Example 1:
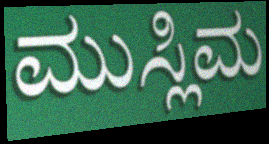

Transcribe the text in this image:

ಮುಸ್ಲಿಮ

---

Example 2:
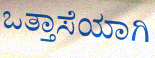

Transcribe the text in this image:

ಒತ್ತಾಸೆಯಾಗಿ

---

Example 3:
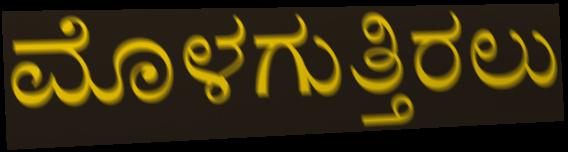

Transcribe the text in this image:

ಮೊಳಗುತ್ತಿರಲು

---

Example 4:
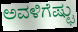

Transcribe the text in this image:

ಅವಳಿಗೆಷ್ಟು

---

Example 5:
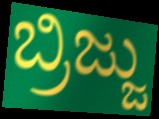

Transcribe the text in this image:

ಬ್ರಿಜ್ಜು